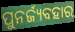
ପୁନର୍ଜ୍ୟବହାର